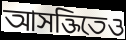
আসক্তিতেও